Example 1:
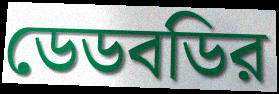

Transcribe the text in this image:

ডেডবডির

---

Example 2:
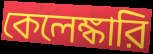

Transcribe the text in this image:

কেলেঙ্কারি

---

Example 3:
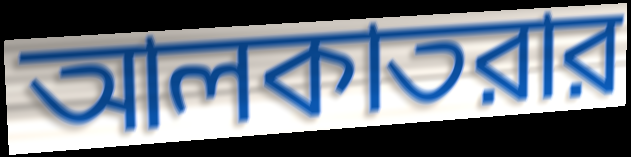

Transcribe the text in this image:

আলকাতরার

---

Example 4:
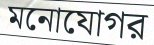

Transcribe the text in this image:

মনোযোগর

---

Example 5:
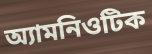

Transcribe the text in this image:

অ্যামনিওটিক